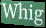
Whig